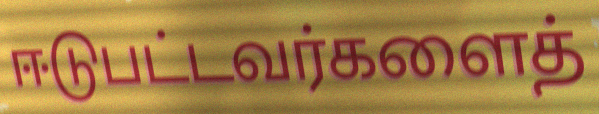
ஈடுபட்டவர்களைத்